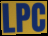
LPC